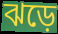
ঝড়ে